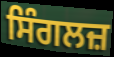
ਸਿੰਗਲਜ਼